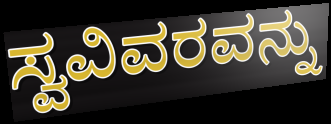
ಸ್ವವಿವರವನ್ನು